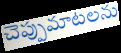
చెప్పుమాటలను